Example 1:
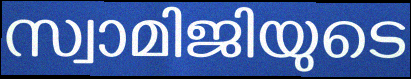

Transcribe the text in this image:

സ്വാമിജിയുടെ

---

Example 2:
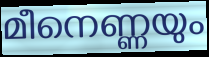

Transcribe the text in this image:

മീനെണ്ണയും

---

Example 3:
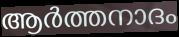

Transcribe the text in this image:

ആർത്തനാദം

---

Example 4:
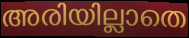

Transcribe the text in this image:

അരിയില്ലാതെ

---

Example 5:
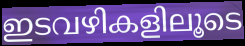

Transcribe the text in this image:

ഇടവഴികളിലൂടെ